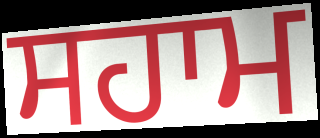
ਸਹਾਮ